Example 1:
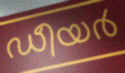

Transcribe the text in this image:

ഡീയർ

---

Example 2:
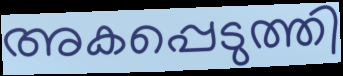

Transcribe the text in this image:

അകപ്പെടുത്തി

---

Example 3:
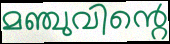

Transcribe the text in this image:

മഞ്ചുവിന്റെ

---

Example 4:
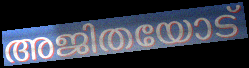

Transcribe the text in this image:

അജിതയോട്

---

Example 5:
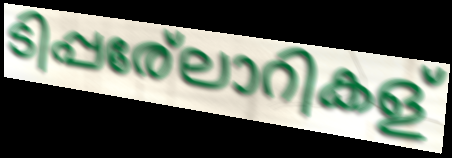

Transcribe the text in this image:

ടിപ്പര്ലോറികള്